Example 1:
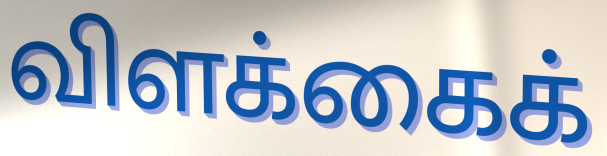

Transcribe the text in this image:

விளக்கைக்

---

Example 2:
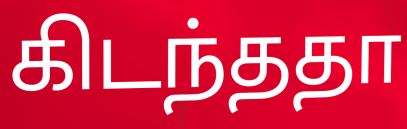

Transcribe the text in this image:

கிடந்ததா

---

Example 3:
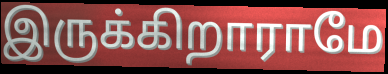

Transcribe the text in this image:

இருக்கிறாராமே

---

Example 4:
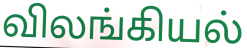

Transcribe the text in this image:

விலங்கியல்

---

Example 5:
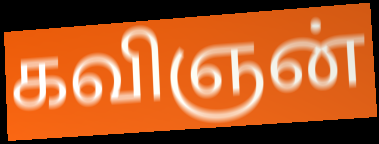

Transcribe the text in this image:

கவிஞன்